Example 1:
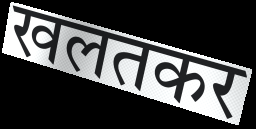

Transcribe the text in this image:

खलतकर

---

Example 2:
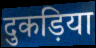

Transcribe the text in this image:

दुकड़िया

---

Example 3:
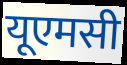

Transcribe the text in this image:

यूएमसी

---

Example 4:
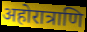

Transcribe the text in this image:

अहोरात्राणि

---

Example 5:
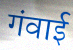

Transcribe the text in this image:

गंवाई